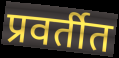
प्रवर्तीत